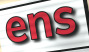
ens